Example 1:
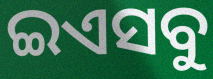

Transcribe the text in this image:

ଇଏସବୁ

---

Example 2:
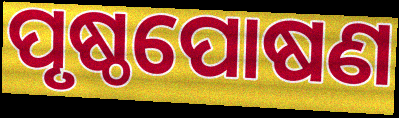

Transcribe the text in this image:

ପୃଷ୍ଠପୋଷଣ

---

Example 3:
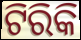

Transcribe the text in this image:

ଟିରିକି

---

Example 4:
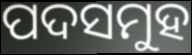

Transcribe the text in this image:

ପଦସମୁହ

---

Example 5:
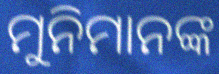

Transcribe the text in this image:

ମୁନିମାନଙ୍କ